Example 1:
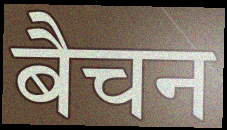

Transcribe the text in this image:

बैचन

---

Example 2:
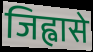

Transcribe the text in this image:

जिह्वासे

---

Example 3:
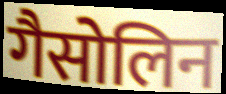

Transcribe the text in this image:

गैसोलिन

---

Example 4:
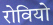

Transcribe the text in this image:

रोवियो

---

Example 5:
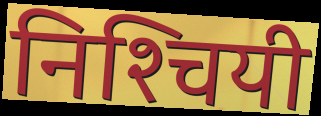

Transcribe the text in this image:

निश्चियी